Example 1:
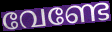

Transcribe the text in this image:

വേണ്ടേ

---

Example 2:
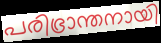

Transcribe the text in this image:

പരിഭ്രാന്തനായി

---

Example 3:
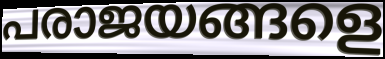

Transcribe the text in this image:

പരാജയങ്ങളെ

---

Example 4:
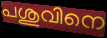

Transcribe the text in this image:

പശുവിനെ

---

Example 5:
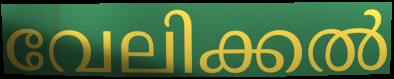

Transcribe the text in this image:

വേലിക്കൽ